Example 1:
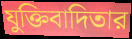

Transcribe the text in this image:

যুক্তিবাদিতার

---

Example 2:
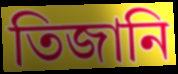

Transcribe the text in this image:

তিজানি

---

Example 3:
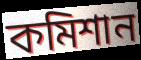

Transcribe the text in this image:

কমিশান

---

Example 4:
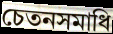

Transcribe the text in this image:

চেতনসমাধি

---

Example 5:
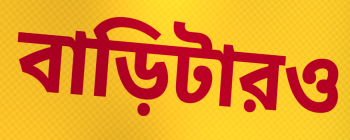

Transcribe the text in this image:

বাড়িটারও